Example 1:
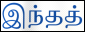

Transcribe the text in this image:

இந்தத்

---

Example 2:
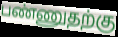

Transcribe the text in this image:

பண்ணுதற்கு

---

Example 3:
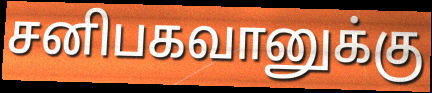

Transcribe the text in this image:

சனிபகவானுக்கு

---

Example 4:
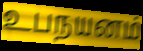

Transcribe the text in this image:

உபநயனம்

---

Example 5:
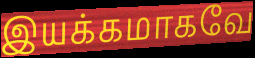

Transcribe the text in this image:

இயக்கமாகவே